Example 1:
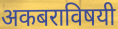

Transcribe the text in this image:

अकबराविषयी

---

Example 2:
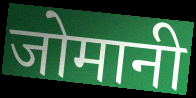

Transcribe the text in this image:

जोमानी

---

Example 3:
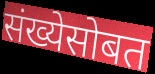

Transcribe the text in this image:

संख्येसोबत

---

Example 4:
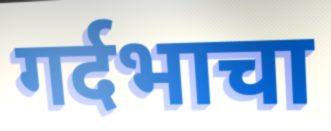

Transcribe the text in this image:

गर्दभाचा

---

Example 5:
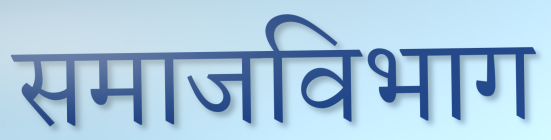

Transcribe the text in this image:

समाजविभाग